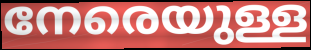
നേരെയുള്ള